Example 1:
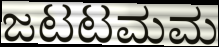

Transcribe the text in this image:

ಜಟಟಮಮ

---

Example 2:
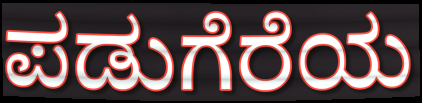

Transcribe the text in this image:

ಪಡುಗೆರೆಯ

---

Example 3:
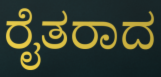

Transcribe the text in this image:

ರೈತರಾದ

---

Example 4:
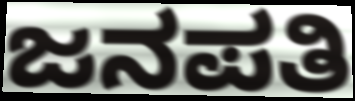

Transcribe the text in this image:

ಜನಪತಿ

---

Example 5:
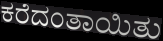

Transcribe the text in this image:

ಕರೆದಂತಾಯಿತು